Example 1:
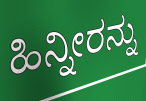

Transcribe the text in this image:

ಹಿನ್ನೀರನ್ನು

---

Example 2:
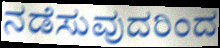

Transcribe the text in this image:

ನಡೆಸುವುದರಿಂದ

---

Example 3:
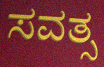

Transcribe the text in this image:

ಸವತ್ಸ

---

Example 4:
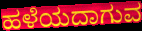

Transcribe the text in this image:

ಹಳೆಯದಾಗುವ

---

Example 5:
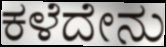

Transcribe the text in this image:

ಕಳೆದೇನು